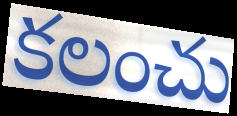
కలంచు